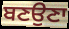
ਬਣਉਣਾ